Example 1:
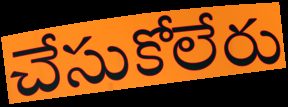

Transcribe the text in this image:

చేసుకోలేరు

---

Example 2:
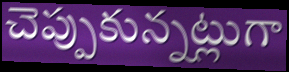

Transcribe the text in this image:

చెప్పుకున్నట్లుగా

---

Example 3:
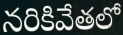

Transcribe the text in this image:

నరికివేతలో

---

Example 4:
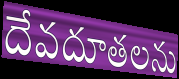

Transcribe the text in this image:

దేవదూతలను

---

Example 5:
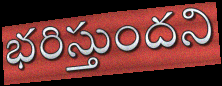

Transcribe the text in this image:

భరిస్తుందని